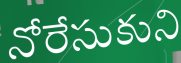
నోరేసుకుని